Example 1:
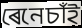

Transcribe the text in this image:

ৰেনেচাঁই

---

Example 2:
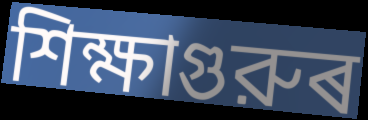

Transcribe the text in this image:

শিক্ষাগুৰুৰ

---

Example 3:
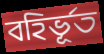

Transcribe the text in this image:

বহিৰ্ভূত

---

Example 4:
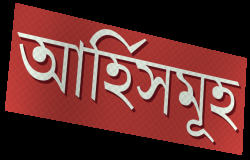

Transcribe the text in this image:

আৰ্হিসমূহ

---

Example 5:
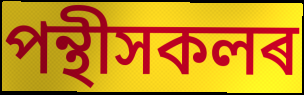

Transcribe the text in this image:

পন্থীসকলৰ